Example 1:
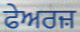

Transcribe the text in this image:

ਫੇਅਰਜ਼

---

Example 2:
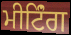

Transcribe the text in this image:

ਮੀਟਿਂੰਗ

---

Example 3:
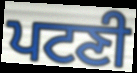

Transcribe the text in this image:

ਪਟਣੀ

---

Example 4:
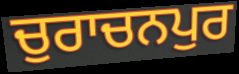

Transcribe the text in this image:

ਚੁਰਾਚਨਪੁਰ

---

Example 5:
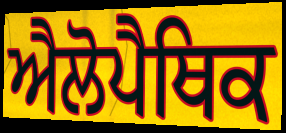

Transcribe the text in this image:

ਐਲੋਪੈਥਿਕ